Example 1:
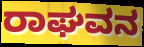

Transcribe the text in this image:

ರಾಘವನ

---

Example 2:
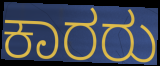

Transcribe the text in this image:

ಕಾರರು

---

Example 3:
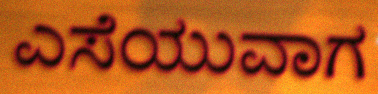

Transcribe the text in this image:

ಎಸೆಯುವಾಗ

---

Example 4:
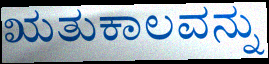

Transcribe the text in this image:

ಋತುಕಾಲವನ್ನು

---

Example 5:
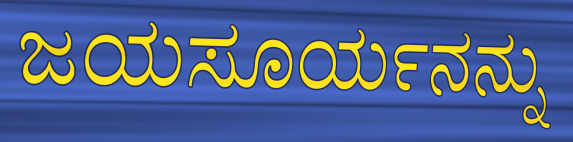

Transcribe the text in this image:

ಜಯಸೂರ್ಯನನ್ನು